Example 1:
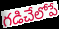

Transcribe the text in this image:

గడిచేలోపే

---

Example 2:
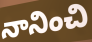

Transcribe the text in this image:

నానించి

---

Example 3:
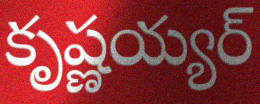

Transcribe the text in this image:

కృష్ణయ్యర్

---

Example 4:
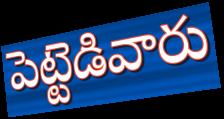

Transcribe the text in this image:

పెట్టెడివారు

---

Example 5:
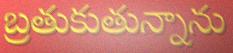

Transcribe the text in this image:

బ్రతుకుతున్నాను